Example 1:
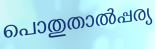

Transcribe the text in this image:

പൊതുതാൽപ്പര്യ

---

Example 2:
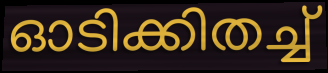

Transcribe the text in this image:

ഓടിക്കിതച്ച്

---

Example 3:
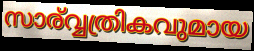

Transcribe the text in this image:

സാര്വ്വത്രികവുമായ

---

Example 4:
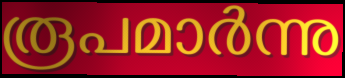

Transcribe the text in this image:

രൂപമാർന്നു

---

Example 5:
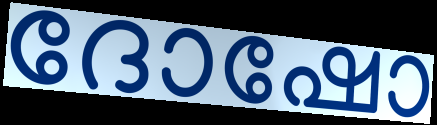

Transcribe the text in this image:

ദോഷോ